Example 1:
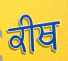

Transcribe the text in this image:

ਕੀਥ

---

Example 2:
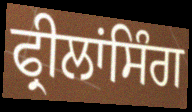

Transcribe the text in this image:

ਫ੍ਰੀਲਾਂਸਿੰਗ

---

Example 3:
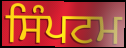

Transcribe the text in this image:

ਸਿੰਪਟਮ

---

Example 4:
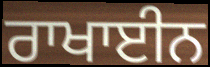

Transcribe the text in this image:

ਰਾਖਾਈਨ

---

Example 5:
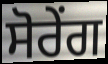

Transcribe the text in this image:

ਸੋਰੇਂਗ